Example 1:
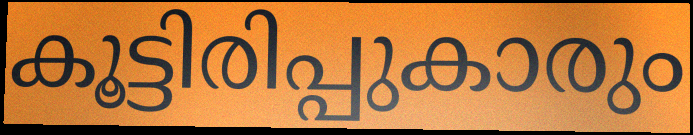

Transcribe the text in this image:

കൂട്ടിരിപ്പുകാരും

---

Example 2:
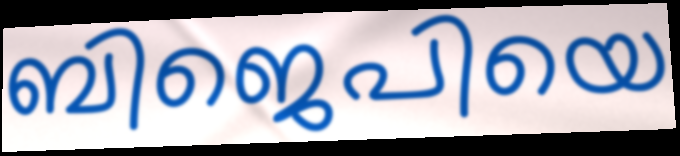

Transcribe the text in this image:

ബിജെപിയെ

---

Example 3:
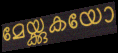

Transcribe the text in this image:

മേയ്ക്കുകയോ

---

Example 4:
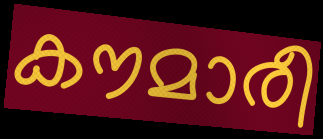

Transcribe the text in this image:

കൗമാരീ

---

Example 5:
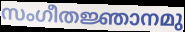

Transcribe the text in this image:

സംഗീതജ്ഞാനമു